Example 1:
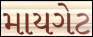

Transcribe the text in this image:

માયગેટ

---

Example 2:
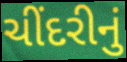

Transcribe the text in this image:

ચીંદરીનું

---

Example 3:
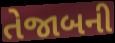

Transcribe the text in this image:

તેજાબની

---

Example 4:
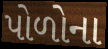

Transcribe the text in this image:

પોળોના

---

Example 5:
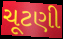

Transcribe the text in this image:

ચૂટણી